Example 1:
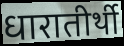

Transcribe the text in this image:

धारातीर्थी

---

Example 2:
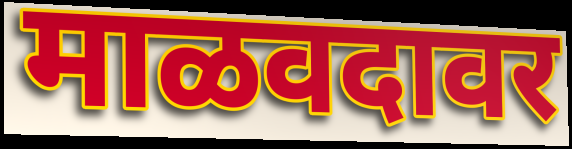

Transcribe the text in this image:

माळवदावर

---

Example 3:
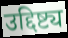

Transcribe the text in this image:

उद्दिष्ट्य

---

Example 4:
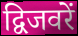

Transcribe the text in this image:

द्विजवरें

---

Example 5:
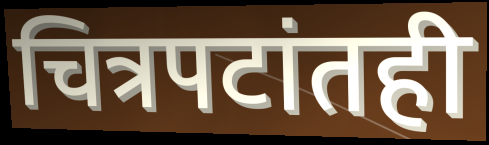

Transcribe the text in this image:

चित्रपटांतही